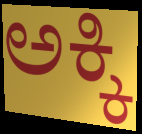
ಅಕ್ಕಿ